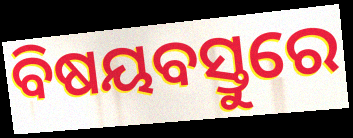
ବିଷୟବସ୍ତୁରେ